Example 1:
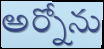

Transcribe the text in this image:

అర్నోను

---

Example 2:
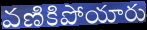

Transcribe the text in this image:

వణికిపోయారు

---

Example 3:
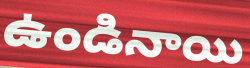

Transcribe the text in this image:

ఉండినాయి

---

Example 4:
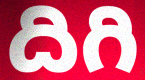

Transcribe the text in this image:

దిగి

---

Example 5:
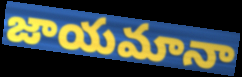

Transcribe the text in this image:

జాయమానా